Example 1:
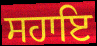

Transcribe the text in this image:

ਸਹਾਇ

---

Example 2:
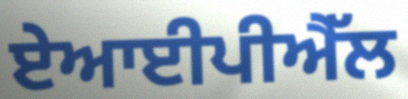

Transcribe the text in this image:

ਏਆਈਪੀਐੱਲ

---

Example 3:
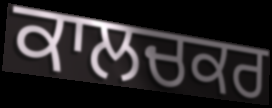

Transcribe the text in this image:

ਕਾਲਚਕਰ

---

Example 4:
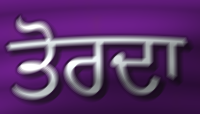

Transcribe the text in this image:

ਤੋਰਦਾ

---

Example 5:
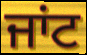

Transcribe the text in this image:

ਜਾਂਟ